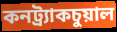
কনট্র্যাকচুয়াল